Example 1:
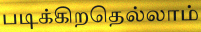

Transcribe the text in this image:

படிக்கிறதெல்லாம்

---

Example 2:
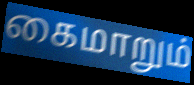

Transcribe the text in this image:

கைமாறும்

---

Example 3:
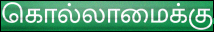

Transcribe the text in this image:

கொல்லாமைக்கு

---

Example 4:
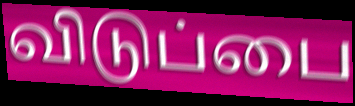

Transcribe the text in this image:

விடுப்பை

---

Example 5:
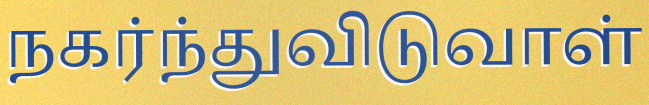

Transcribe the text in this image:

நகர்ந்துவிடுவாள்